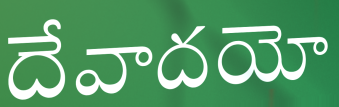
దేవాదయో